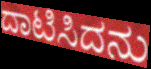
ದಾಟಿಸಿದನು